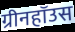
ग्रीनहॉउस